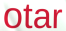
otar